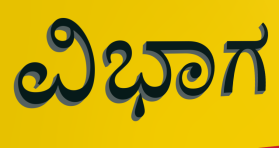
ವಿಭಾಗ